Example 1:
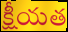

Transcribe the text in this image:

క్షీయత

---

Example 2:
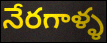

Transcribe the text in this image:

నేరగాళ్ళ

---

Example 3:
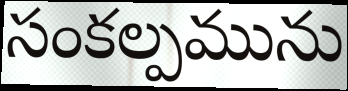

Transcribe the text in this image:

సంకల్పమును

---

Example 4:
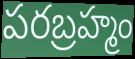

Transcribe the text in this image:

పరబ్రహ్మం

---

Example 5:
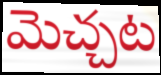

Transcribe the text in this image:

మెచ్చట